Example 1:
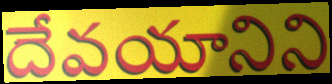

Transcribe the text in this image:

దేవయానిని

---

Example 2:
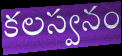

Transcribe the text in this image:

కలస్వనం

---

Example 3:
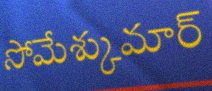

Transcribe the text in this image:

సోమేశ్కుమార్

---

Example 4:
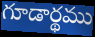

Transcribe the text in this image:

గూడార్థము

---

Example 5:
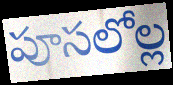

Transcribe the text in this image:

పూసలోల్ల